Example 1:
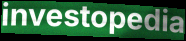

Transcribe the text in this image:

investopedia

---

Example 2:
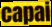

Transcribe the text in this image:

capai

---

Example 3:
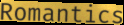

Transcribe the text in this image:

Romantics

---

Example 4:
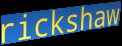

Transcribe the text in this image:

rickshaw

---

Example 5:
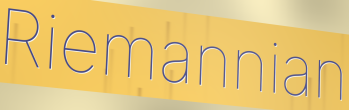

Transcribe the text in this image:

Riemannian